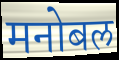
मनोबल